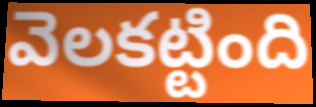
వెలకట్టింది